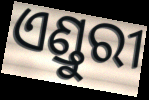
ଏଣ୍ଡୁରୀ